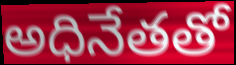
అధినేతతో